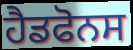
ਹੈਡਫੋਨਸ